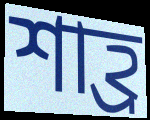
শাহ্র